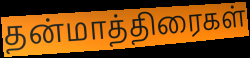
தன்மாத்திரைகள்